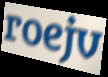
roeju